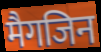
मैगजिन